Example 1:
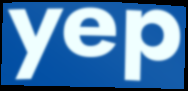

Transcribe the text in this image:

yep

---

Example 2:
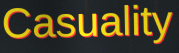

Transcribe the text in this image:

Casuality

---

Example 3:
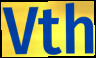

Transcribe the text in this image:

Vth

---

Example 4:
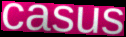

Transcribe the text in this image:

casus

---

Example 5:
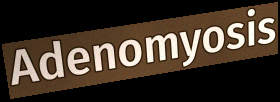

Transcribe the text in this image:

Adenomyosis